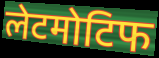
लेटमोटिफ